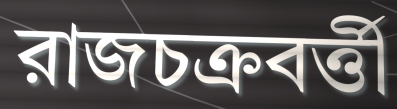
রাজচক্রবর্ত্তী